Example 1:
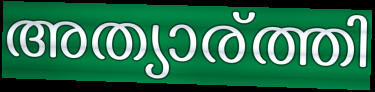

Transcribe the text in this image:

അത്യാര്ത്തി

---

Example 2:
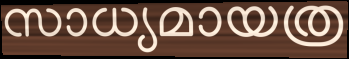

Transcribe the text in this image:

സാധ്യമായത്ര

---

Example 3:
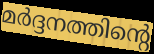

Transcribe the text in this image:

മർദ്ദനത്തിന്റെ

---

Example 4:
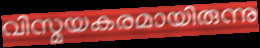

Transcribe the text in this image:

വിസ്മയകരമായിരുന്നു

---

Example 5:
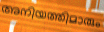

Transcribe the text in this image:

അനിയത്തിമാരും